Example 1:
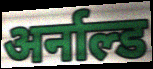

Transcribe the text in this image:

अर्नाल्ड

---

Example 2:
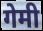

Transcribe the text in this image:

गेमी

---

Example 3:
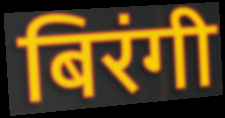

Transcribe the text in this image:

बिरंगी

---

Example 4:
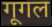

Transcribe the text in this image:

गूगल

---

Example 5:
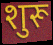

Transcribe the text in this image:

शुरू